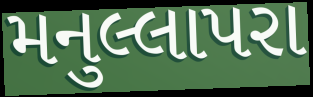
મનુલ્લાપરા